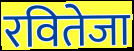
रवितेजा